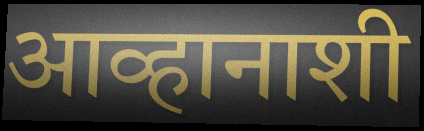
आव्हानाशी